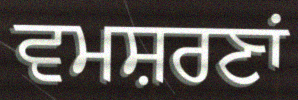
ਵਮਸ਼ਰਣਾਂ